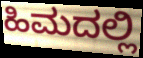
ಹಿಮದಲ್ಲಿ